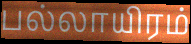
பல்லாயிரம்